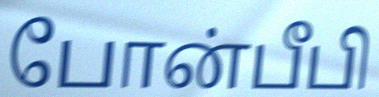
போன்பீபி